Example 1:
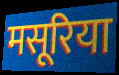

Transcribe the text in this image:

मसूरिया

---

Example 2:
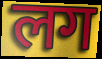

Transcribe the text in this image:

लग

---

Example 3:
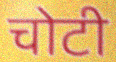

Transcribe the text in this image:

चोटी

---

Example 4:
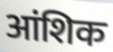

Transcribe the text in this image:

आंशिक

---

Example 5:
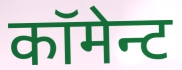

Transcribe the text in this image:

कॉमेन्ट